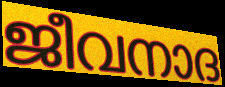
ജീവനാദ